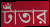
টাঁতার